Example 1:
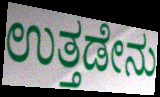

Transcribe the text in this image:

ಉತ್ತಡೇನು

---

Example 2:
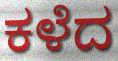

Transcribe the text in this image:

ಕಳೆದ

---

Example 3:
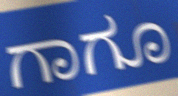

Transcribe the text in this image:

ಗಾಗೂ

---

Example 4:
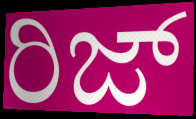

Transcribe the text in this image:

ರಿಜ್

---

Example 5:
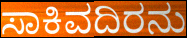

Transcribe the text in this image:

ಸಾಕಿವದಿರನು